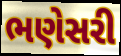
ભણેસરી